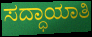
ಸದ್ಧಾಯಾತಿ